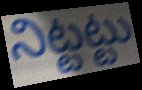
నిట్టట్టు